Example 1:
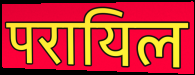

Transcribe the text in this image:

परायिल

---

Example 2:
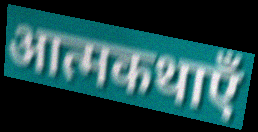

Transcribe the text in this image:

आत्मकथाएँ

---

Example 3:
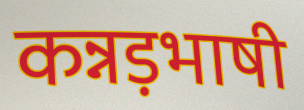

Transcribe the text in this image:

कन्नड़भाषी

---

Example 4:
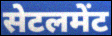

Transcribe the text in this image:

सेटलमेंट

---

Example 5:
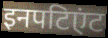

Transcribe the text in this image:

इनपटिएंट